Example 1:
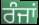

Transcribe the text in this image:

ਰੰਜਾਂ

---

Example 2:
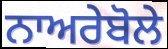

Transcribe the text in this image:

ਨਾਅਰੇਬੋਲੇ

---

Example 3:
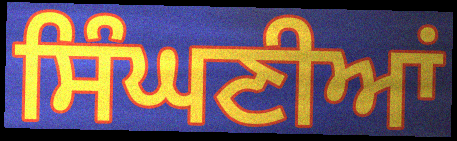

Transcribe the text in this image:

ਸਿੰਘਣੀਆਂ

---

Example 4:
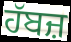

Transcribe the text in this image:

ਹੱਬਜ਼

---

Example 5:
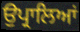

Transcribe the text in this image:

ਉਪ੍ਰਾਲਿਆਂ